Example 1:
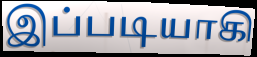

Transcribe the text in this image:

இப்படியாகி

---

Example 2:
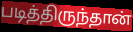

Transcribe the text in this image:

படித்திருந்தான்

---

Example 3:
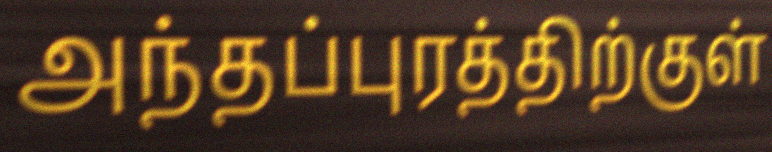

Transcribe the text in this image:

அந்தப்புரத்திற்குள்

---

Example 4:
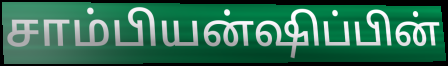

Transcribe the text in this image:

சாம்பியன்ஷிப்பின்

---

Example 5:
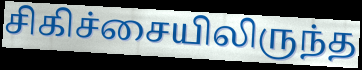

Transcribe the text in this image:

சிகிச்சையிலிருந்த